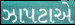
ઝાપટાએ